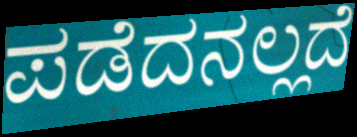
ಪಡೆದನಲ್ಲದೆ